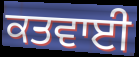
ਕਤਵਾਈ